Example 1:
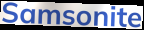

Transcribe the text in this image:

Samsonite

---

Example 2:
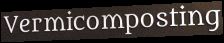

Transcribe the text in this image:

Vermicomposting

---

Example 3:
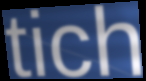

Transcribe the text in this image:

tich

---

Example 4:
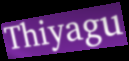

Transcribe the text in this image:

Thiyagu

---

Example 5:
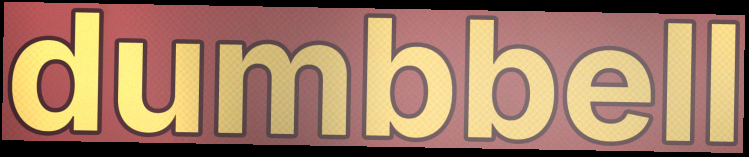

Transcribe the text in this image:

dumbbell